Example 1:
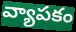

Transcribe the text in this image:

వ్యాపకం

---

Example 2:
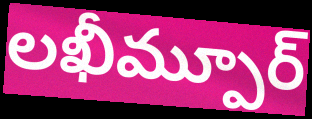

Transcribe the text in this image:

లఖీమ్పూర్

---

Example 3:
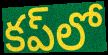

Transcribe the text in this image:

కప్‌లో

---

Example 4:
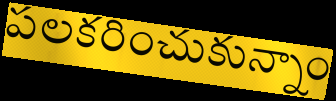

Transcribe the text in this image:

పలకరించుకున్నాం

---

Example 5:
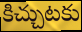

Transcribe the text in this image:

కిచ్చుటకు